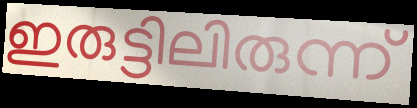
ഇരുട്ടിലിരുന്ന്